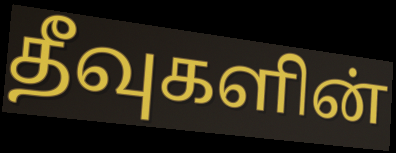
தீவுகளின்